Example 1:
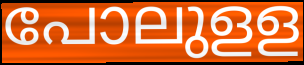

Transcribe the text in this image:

പോലുളള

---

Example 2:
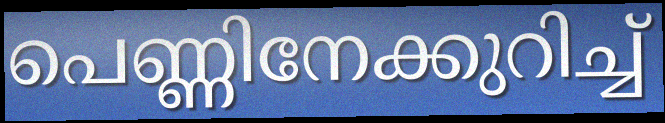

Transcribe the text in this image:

പെണ്ണിനേക്കുറിച്ച്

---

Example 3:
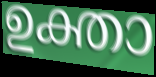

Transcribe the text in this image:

ഉക്താ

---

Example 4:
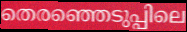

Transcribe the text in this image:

തെരഞ്ഞെടുപ്പിലെ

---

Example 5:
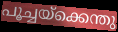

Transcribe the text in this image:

പൂച്ചയ്ക്കെന്തു